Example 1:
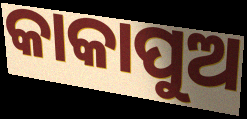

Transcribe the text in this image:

କାକାପୁଅ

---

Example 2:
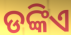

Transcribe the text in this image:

ଡଙ୍କିଏ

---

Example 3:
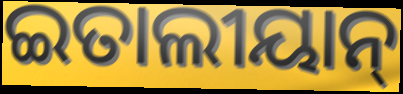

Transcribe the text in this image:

ଇତାଲୀୟାନ୍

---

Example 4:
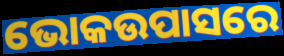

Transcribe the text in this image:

ଭୋକଉପାସରେ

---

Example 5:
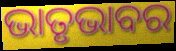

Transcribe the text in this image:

ଭାତୃଭାବର